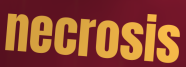
necrosis